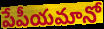
పేపీయమానో